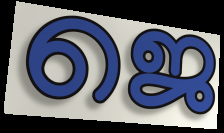
ജെ